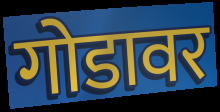
गोडावर